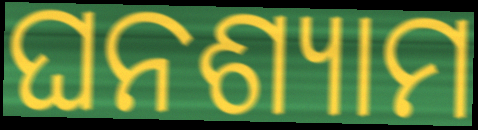
ଘନଶ୍ୟାମ